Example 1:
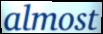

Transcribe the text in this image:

almost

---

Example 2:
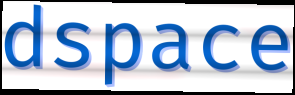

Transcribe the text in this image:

dspace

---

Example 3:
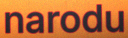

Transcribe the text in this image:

narodu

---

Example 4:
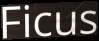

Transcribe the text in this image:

Ficus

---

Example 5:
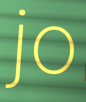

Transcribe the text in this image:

jo